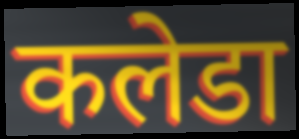
कलेडा